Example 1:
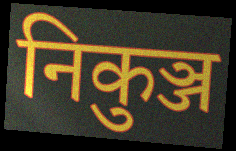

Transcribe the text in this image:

निकुञ्ज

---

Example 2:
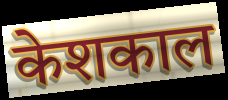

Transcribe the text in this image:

केशकाल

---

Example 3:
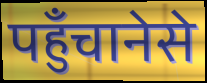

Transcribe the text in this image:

पहुँचानेसे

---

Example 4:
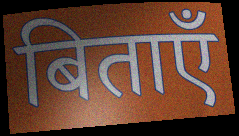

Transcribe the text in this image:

बिताएँ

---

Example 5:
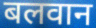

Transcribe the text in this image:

बलवान